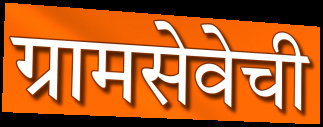
ग्रामसेवेची